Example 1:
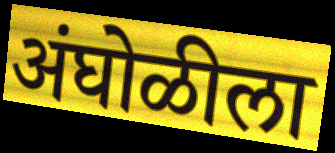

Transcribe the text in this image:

अंघोळीला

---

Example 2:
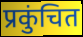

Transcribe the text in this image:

प्रकुंचित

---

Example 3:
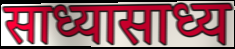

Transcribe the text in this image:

साध्यासाध्य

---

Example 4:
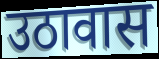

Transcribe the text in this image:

उठावास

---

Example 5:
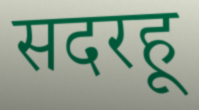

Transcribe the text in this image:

सदरहू